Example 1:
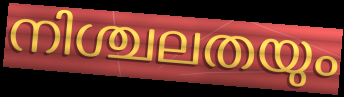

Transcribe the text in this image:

നിശ്ചലതയും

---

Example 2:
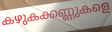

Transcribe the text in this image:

കഴുകക്കണ്ണുകളെ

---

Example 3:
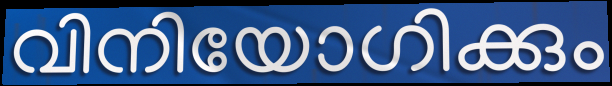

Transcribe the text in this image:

വിനിയോഗിക്കും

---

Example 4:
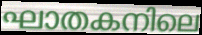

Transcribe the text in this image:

ഘാതകനിലെ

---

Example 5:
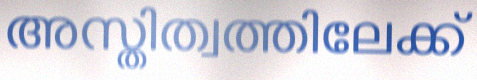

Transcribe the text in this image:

അസ്തിത്വത്തിലേക്ക്